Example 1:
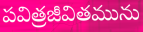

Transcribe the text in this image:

పవిత్రజీవితమును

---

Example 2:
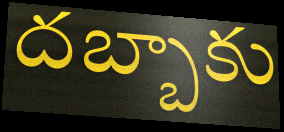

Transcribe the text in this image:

దబ్బాకు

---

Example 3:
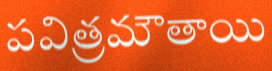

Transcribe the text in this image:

పవిత్రమౌతాయి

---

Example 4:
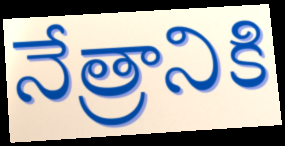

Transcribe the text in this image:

నేత్రానికి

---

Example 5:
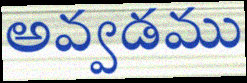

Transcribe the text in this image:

అవ్వడము